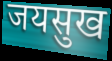
जयसुख